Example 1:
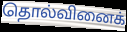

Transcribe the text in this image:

தொல்வினைக்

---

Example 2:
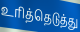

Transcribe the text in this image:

உரித்தெடுத்து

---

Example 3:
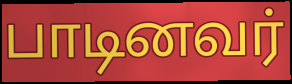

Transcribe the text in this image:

பாடினவர்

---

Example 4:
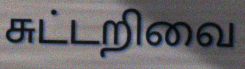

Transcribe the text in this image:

சுட்டறிவை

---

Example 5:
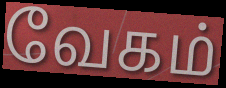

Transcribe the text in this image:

வேகம்